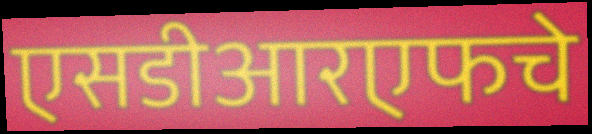
एसडीआरएफचे